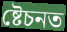
ষ্টেচনত